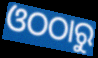
ଓଠଠାରୁ